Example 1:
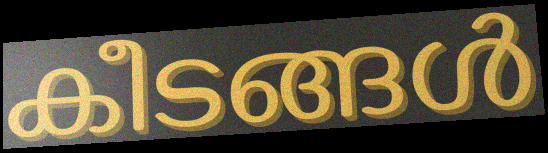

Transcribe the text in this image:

കീടങ്ങൾ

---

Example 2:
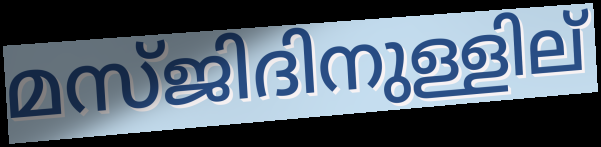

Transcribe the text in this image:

മസ്ജിദിനുള്ളില്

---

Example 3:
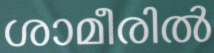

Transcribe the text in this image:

ശാമീരിൽ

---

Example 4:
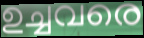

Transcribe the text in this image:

ഉച്ചവരെ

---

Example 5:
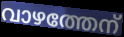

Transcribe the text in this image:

വാഴത്തേന്